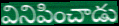
వినిపించాడు